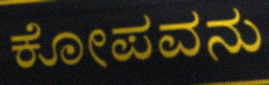
ಕೋಪವನು